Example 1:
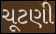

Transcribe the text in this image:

ચૂટણી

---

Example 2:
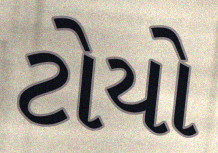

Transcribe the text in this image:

ટોયો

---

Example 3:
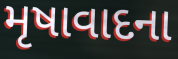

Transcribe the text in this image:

મૃષાવાદના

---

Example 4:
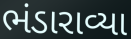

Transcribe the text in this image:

ભંડારાવ્યા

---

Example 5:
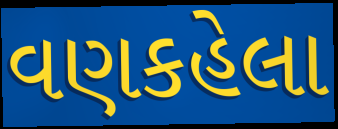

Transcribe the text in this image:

વણકહેલા